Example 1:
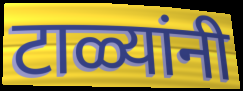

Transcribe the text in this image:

टाळ्यांनी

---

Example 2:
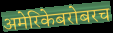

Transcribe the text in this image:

अमेरिकेबरोबरच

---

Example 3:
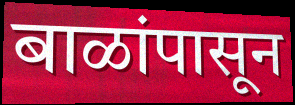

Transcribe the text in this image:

बाळांपासून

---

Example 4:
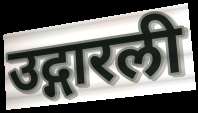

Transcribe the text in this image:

उद्गारली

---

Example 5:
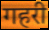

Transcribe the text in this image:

गहरी